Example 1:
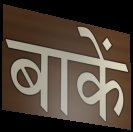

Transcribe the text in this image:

बाकें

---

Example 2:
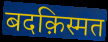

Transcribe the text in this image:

बदक़िस्मत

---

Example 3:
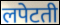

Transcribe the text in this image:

लपेटती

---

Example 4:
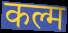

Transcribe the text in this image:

कल्म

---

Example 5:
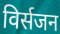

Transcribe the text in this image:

विर्सजन